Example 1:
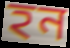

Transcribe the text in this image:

হন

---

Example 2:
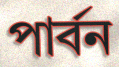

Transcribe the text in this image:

পাৰ্বন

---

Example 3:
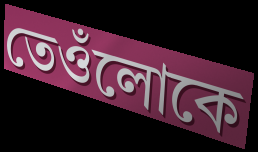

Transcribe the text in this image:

তেওঁলোকে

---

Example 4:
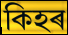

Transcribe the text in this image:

কিহৰ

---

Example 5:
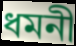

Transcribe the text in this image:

ধমনী